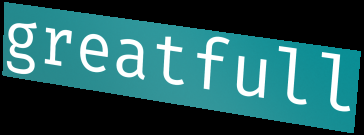
greatfull